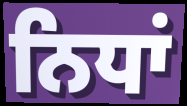
ਨਿਧਾਂ